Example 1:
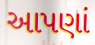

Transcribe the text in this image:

આપણાં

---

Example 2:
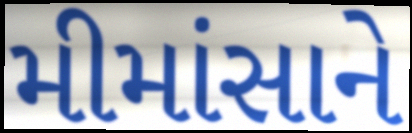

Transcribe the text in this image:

મીમાંસાને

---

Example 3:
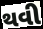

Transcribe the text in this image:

થવી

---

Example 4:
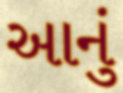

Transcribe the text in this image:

આનું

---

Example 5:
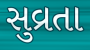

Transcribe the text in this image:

સુવ્રતા